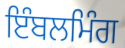
ਇੰਬਲਮਿੰਗ